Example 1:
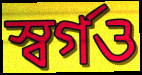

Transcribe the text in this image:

স্বর্গও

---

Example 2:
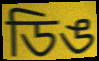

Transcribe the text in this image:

ডিঙ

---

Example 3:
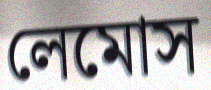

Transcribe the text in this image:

লেমোস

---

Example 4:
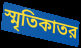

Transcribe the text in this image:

স্মৃতিকাতর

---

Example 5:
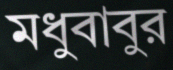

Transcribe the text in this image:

মধুবাবুর